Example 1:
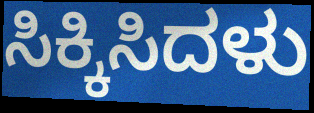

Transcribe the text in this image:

ಸಿಕ್ಕಿಸಿದಳು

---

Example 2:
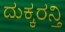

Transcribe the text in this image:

ದುಕ್ಕರನ್ತಿ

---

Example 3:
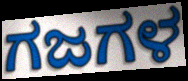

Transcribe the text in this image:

ಗಜಗಳ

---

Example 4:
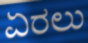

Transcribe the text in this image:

ಏರಲು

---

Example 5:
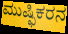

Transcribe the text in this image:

ಮುಷ್ಫಿಕರನ